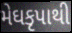
મેઘકૃપાથી